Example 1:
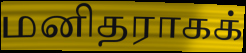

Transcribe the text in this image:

மனிதராகக்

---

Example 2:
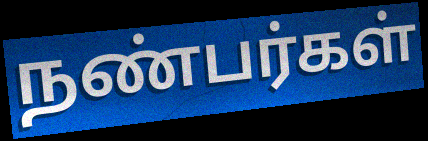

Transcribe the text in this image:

நண்பர்கள்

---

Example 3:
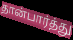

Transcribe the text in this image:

தான்பார்த்து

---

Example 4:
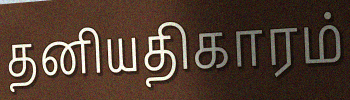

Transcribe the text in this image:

தனியதிகாரம்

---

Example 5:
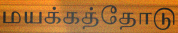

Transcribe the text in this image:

மயக்கத்தோடு